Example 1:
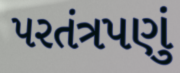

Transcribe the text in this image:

પરતંત્રપણું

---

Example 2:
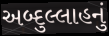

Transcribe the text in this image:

અબ્દુલ્લાહનું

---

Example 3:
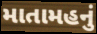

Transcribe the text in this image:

માતામહનું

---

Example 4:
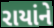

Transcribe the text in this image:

રાયાંને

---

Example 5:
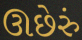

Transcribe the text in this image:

ઊછેરું